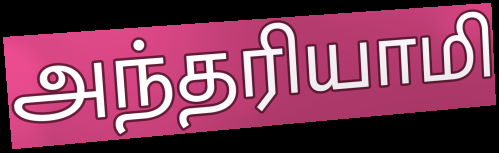
அந்தரியாமி